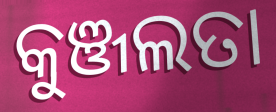
କୁଞ୍ଜଲତା